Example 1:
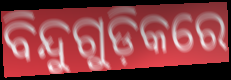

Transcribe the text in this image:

ବିନ୍ଦୁଗୁଡ଼ିକରେ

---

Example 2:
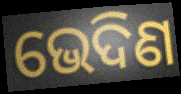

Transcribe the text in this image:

ଭେଦିଣ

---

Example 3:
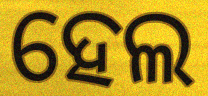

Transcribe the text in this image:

ହେଲ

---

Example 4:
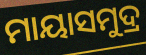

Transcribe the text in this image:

ମାୟାସମୁଦ୍ର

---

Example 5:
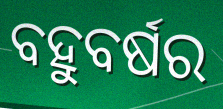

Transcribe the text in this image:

ବହୁବର୍ଷର